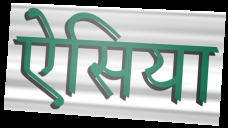
ऐसिया